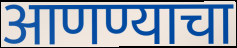
आणण्याचा